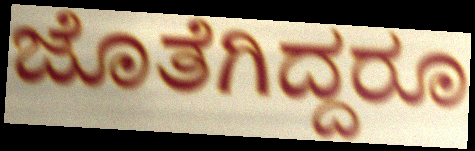
ಜೊತೆಗಿದ್ದರೂ